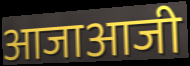
आजाआजी